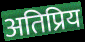
अतिप्रिय